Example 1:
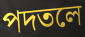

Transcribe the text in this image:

পদতলে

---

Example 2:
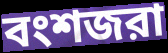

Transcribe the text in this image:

বংশজরা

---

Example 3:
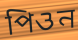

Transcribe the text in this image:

পিওন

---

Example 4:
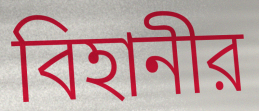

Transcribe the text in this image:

বিহানীর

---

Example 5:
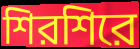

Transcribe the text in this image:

শিরশিরে